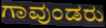
ಗಾವುಂಡರು